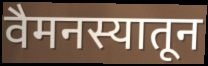
वैमनस्यातून